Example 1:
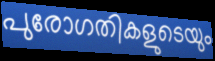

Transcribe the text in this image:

പുരോഗതികളുടെയും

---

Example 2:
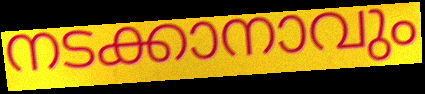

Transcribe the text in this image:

നടക്കാനാവും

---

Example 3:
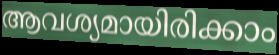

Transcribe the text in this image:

ആവശ്യമായിരിക്കാം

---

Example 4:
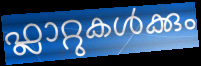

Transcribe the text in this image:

ഫ്ലാറ്റുകൾക്കും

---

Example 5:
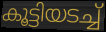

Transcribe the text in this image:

കൂട്ടിയടച്ച്